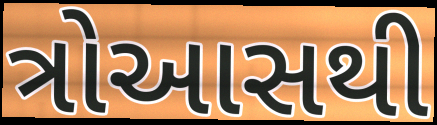
ત્રોઆસથી